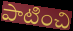
పాటించి